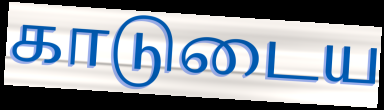
காடுடைய